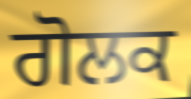
ਗੋਲਕ